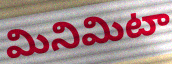
మినిమిటా